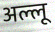
अल्लू